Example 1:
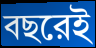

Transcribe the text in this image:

বছরেই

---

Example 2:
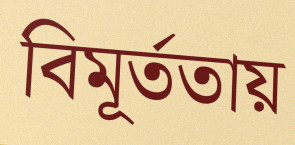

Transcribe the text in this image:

বিমূর্ততায়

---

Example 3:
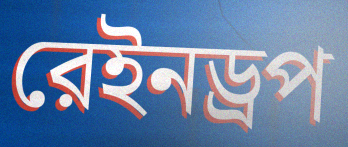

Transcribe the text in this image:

রেইনড্রপ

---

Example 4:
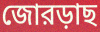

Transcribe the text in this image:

জোরড়াছ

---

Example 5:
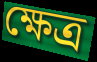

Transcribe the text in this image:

ক্ষেত্র